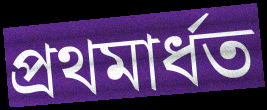
প্ৰথমাৰ্ধত